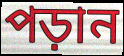
পড়ান